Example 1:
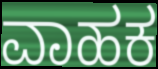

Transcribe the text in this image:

ವಾಹಕ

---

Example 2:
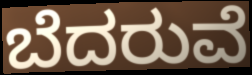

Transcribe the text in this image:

ಬೆದರುವೆ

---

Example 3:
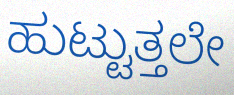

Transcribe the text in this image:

ಹುಟ್ಟುತ್ತಲೇ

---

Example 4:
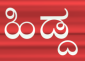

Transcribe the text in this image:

ಹಿಡ್ದ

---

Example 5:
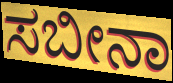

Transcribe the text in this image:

ಸಬೀನಾ